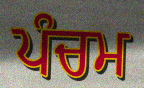
ਪੰਚਮ